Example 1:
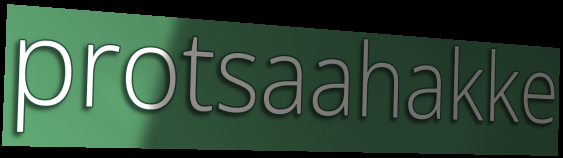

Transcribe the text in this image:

protsaahakke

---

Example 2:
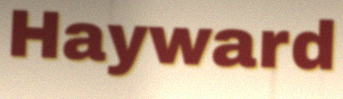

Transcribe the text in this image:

Hayward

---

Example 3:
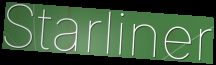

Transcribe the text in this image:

Starliner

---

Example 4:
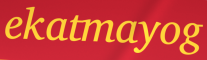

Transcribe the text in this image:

ekatmayog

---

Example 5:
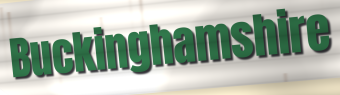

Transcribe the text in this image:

Buckinghamshire